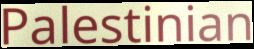
Palestinian